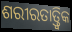
ଶରୀରତାତ୍ତ୍ଵିକ